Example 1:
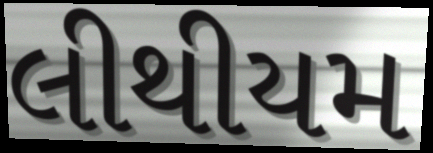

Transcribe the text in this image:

લીથીયમ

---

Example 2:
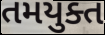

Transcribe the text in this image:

તમયુક્ત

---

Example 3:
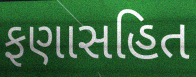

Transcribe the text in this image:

ફણાસહિત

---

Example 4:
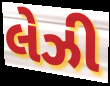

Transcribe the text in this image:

લેઝી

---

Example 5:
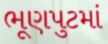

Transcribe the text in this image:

ભૂણપુટમાં